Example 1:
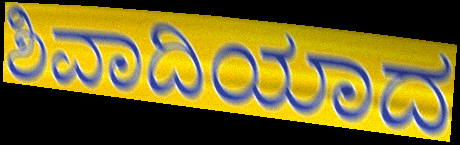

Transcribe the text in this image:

ಶಿವಾದಿಯಾದ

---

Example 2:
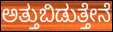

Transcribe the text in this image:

ಅತ್ತುಬಿಡುತ್ತೇನೆ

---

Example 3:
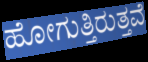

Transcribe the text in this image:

ಹೋಗುತ್ತಿರುತ್ತವೆ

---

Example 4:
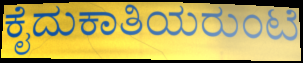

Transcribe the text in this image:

ಕೈದುಕಾತಿಯರುಂಟೆ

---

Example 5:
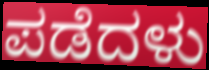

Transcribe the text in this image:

ಪಡೆದಳು